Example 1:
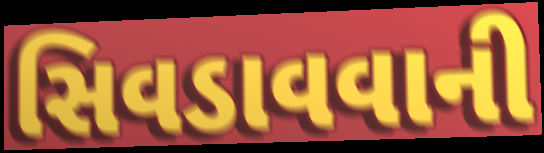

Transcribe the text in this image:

સિવડાવવાની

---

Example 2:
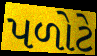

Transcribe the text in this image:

પળોટે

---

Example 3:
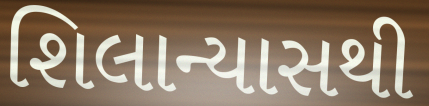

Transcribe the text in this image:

શિલાન્યાસથી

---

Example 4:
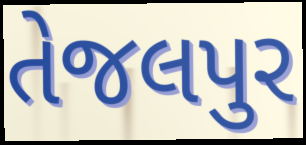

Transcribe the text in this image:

તેજલપુર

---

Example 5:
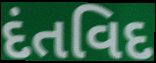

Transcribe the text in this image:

દંતવિદ